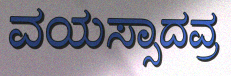
ವಯಸ್ಸಾದವ್ರ